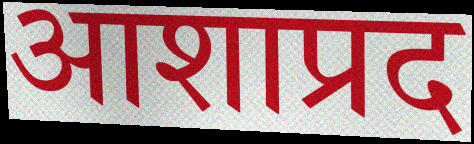
आशाप्रद